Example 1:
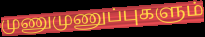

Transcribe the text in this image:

முணுமுணுப்புகளும்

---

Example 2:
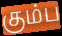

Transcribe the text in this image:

கும்ப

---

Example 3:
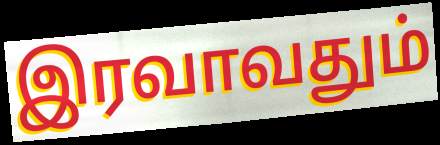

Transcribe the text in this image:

இரவாவதும்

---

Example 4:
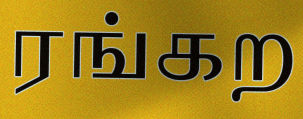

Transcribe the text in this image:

ரங்கற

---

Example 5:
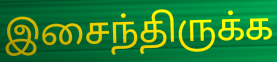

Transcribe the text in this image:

இசைந்திருக்க